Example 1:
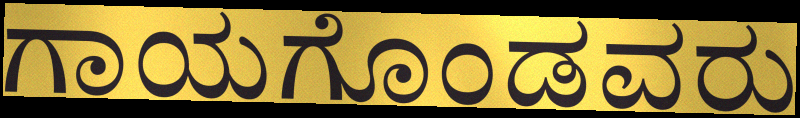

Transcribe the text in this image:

ಗಾಯಗೊಂಡವರು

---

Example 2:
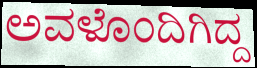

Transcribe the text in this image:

ಅವಳೊಂದಿಗಿದ್ದ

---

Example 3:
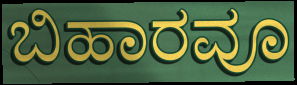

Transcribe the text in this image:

ಬಿಹಾರವೂ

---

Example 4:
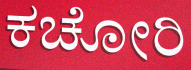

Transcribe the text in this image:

ಕಚೋರಿ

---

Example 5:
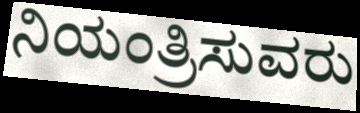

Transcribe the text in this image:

ನಿಯಂತ್ರಿಸುವರು